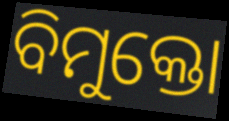
ବିମୁକ୍ତୋ